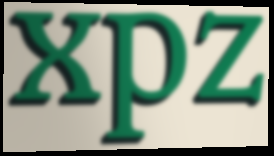
xpz